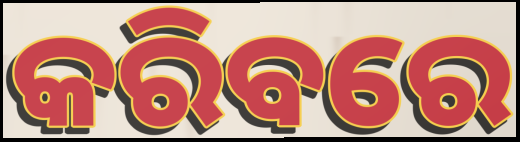
କରିବରେ